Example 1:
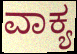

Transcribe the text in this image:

ವಾಕ್ಯ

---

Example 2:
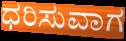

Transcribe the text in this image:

ಧರಿಸುವಾಗ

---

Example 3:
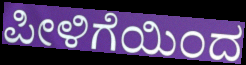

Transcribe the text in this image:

ಪೀಳಿಗೆಯಿಂದ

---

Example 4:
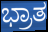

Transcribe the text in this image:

ಭ್ರಾತ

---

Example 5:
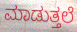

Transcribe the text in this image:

ಮಾಡುತ್ತಲೆ